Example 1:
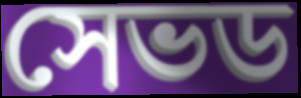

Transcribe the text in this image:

সেভড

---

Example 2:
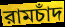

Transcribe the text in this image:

রামচাঁদ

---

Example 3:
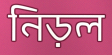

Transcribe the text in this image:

নিড়ল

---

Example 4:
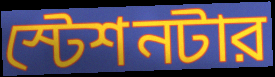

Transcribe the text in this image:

স্টেশনটার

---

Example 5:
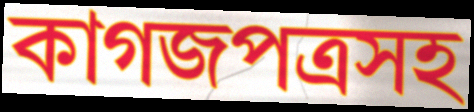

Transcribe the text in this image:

কাগজপত্রসহ